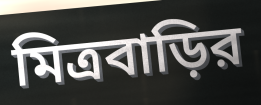
মিত্রবাড়ির